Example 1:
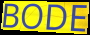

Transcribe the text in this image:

BODE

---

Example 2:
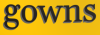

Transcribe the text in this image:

gowns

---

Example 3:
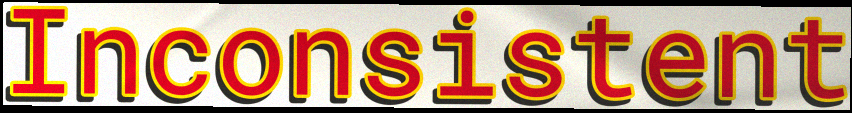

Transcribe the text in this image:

Inconsistent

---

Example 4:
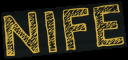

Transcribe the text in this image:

NIFE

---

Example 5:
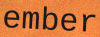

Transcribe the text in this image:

ember